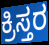
ಕ್ರಿಸ್ತರ